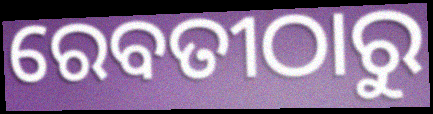
ରେବତୀଠାରୁ